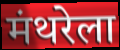
मंथरेला